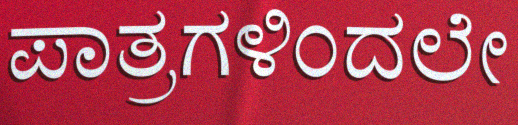
ಪಾತ್ರಗಳಿಂದಲೇ